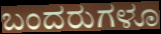
ಬಂದರುಗಳೂ